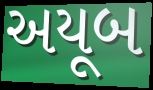
અયૂબ